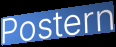
Postern